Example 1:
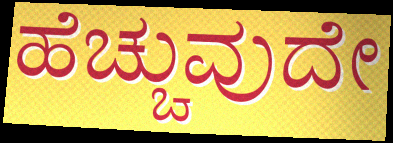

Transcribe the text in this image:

ಹೆಚ್ಚುವುದೇ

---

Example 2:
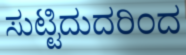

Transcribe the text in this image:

ಸುಟ್ಟಿದುದರಿಂದ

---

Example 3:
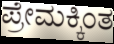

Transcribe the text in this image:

ಪ್ರೇಮಕ್ಕಿಂತ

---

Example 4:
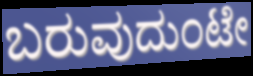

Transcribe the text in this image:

ಬರುವುದುಂಟೇ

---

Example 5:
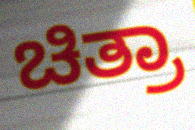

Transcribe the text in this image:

ಚಿತ್ರಾ